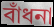
বাঁধনা